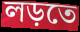
লড়তে